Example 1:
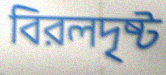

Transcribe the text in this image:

বিরলদৃষ্ট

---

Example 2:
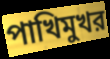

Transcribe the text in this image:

পাখিমুখর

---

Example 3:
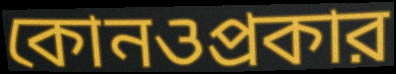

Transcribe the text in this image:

কোনওপ্রকার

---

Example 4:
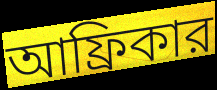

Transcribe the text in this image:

আফ্রিকার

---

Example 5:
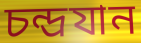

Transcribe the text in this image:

চন্দ্রযান